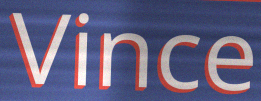
Vince